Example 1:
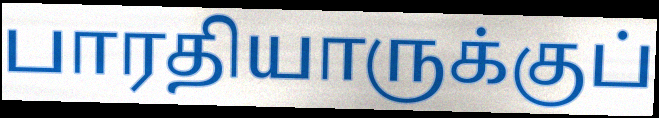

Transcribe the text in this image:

பாரதியாருக்குப்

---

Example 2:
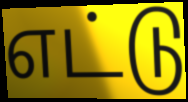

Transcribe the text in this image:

எட்டு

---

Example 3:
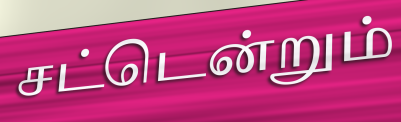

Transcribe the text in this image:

சட்டென்றும்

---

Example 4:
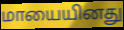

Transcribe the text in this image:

மாயையினது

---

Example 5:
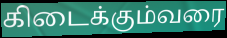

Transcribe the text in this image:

கிடைக்கும்வரை